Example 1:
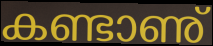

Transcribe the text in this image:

കണ്ടാണു്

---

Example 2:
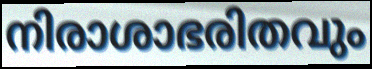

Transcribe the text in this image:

നിരാശാഭരിതവും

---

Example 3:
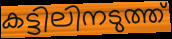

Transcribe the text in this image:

കട്ടിലിനടുത്ത്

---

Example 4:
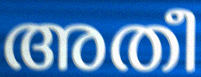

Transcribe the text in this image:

അതീ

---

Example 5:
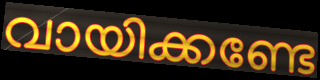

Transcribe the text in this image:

വായിക്കണ്ടേ